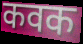
कवक